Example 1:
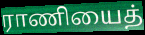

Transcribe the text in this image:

ராணியைத்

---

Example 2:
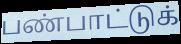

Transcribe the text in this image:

பண்பாட்டுக்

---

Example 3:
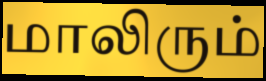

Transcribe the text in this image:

மாலிரும்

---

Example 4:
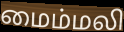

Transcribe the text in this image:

மைம்மலி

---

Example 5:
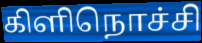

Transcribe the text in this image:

கிளிநொச்சி